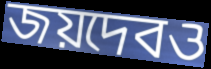
জয়দেবও